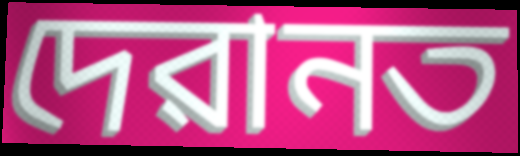
দেৱানত